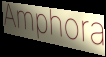
Amphora